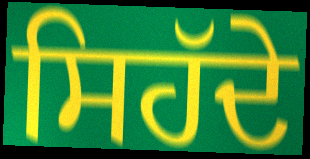
ਸਿਹੱਦੇ